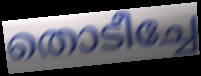
തൊടീച്ചേ